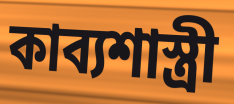
কাব্যশাস্ত্রী